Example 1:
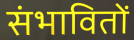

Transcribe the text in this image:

संभावितों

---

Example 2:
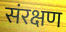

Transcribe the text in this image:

संरक्षण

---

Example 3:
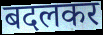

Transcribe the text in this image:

बदलकर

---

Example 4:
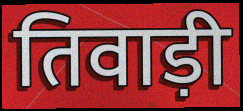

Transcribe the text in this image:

तिवाड़ी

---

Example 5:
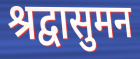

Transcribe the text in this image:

श्रद्वासुमन